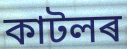
কাটলৰ